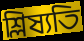
শ্লিষ্যতি